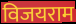
विजयराम